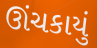
ઊંચકાયું